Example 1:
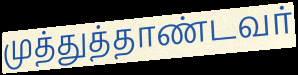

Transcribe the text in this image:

முத்துத்தாண்டவர்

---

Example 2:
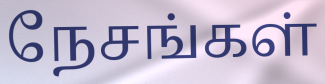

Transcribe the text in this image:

நேசங்கள்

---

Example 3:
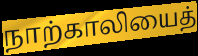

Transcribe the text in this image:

நாற்காலியைத்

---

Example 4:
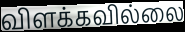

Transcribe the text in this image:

விளக்கவில்லை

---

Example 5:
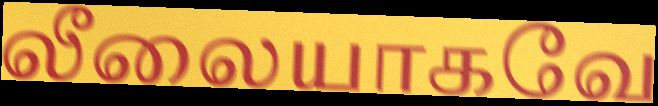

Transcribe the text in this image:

லீலையாகவே